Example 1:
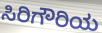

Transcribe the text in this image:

ಸಿರಿಗೌರಿಯ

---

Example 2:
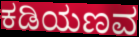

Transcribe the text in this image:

ಕಡಿಯಣವ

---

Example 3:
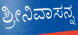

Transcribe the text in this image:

ಶ್ರೀನಿವಾಸನ್ನ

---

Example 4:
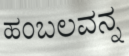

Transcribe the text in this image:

ಹಂಬಲವನ್ನ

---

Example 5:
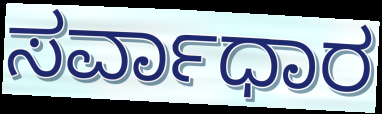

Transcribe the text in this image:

ಸರ್ವಾಧಾರ